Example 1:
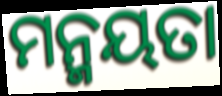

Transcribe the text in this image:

ମନ୍ମୟତା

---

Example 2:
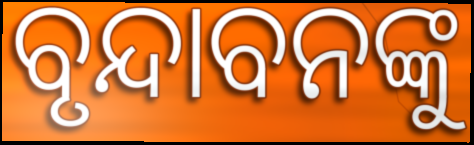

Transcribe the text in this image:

ବୃନ୍ଦାବନଙ୍କୁ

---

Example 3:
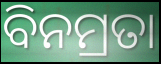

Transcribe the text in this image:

ବିନମ୍ରତା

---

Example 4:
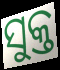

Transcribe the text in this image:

ସୁକ୍ତ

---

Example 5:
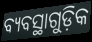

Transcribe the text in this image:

ବ୍ୟବସ୍ଥାଗୁଡ଼ିକ